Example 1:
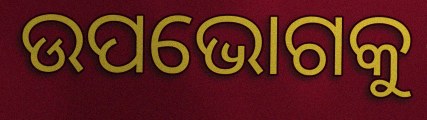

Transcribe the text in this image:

ଉପଭୋଗକୁ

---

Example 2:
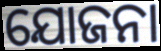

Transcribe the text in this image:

ଯୋଜନା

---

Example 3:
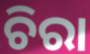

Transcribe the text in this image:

ଚିରା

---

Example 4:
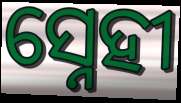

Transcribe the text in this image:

ସ୍ନେହୀ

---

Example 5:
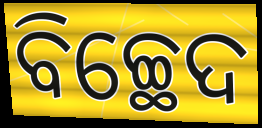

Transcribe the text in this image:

ବିଚ୍ଛେଦ